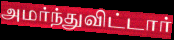
அமர்ந்துவிட்டார்